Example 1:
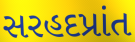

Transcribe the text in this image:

સરહદપ્રાંત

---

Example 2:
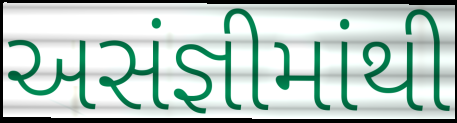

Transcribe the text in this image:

અસંજ્ઞીમાંથી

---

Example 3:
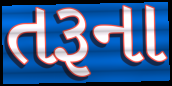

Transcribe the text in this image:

તરૂના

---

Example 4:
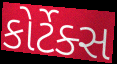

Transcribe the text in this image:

કોર્ટેક્સ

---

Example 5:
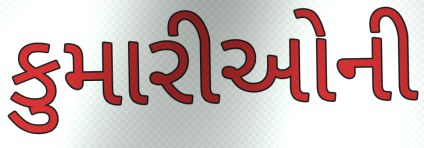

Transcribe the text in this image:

કુમારીઓની